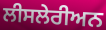
ਲੀਸਲੇਰੀਅਨ